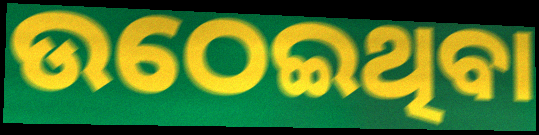
ଉଠେଇଥିବା